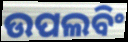
ଉପଲବିଂ